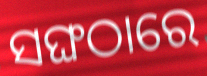
ସଙ୍ଘଠାରେ